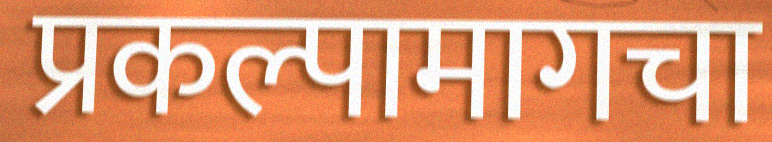
प्रकल्पामागचा